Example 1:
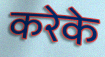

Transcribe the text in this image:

करेके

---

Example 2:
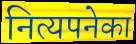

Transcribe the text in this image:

नित्यपनेका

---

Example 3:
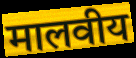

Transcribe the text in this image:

मालवीय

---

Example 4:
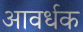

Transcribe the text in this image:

आवर्धक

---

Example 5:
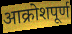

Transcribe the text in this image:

आक्रोशपूर्ण